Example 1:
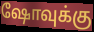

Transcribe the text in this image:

ஷோவுக்கு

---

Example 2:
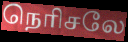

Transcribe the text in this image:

நெரிசலே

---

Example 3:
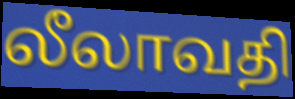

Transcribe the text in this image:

லீலாவதி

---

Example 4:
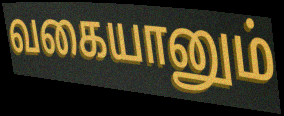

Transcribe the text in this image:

வகையானும்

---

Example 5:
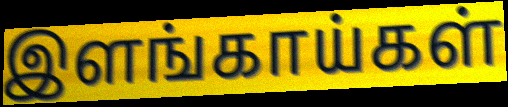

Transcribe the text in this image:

இளங்காய்கள்